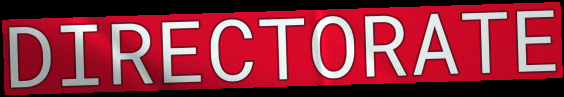
DIRECTORATE